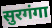
सुरगंगा